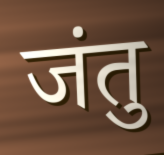
जंतु